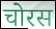
चोरस